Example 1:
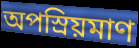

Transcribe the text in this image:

অপস্রিয়মাণ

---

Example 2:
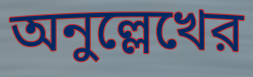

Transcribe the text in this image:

অনুল্লেখের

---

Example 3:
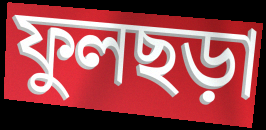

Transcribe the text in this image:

ফুলছড়া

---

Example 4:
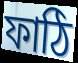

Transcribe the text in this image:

ফাঠি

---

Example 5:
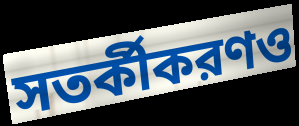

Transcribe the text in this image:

সতর্কীকরণও